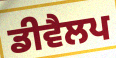
ਡੀਵੈਲਪ